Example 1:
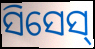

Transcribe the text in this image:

ସିସେସ୍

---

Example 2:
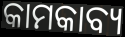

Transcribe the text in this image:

କାମକାବ୍ୟ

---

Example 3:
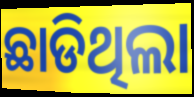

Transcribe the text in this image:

ଛାଡିଥିଲା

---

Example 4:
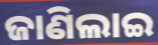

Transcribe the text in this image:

ଜାଣିଲାଇ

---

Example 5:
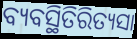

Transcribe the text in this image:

ବ୍ୟବସ୍ଥିତିରିତ୍ୟସା